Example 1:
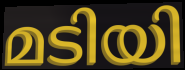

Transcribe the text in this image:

മടിയി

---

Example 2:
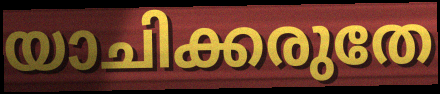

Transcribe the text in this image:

യാചിക്കരുതേ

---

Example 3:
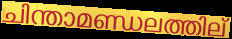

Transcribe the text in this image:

ചിന്താമണ്ഡലത്തില്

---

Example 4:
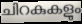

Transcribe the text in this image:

ചിറകുകളും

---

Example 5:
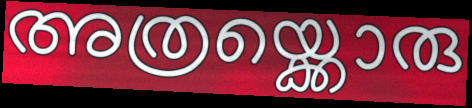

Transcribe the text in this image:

അത്രയ്ക്കൊരു